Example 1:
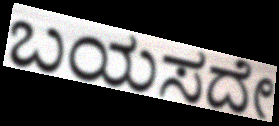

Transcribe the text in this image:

ಬಯಸದೇ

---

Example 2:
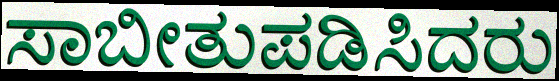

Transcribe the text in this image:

ಸಾಬೀತುಪಡಿಸಿದರು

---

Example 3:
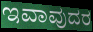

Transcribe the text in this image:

ಇವಾವುದರ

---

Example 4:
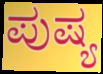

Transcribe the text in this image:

ಪುಷ್ಯ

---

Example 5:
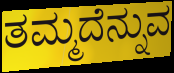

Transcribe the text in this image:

ತಮ್ಮದೆನ್ನುವ